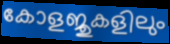
കോളജുകളിലും